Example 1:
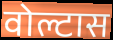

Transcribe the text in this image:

वोल्टास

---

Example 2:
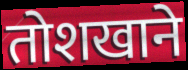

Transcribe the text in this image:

तोशखाने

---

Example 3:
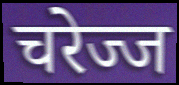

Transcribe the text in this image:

चरेज्ज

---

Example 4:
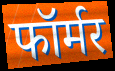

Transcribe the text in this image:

फॉर्मर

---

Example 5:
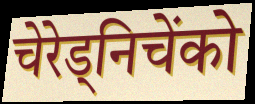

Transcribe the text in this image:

चेरेड्निचेंको